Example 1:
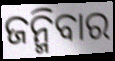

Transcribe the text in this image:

ଜନ୍ମିବାର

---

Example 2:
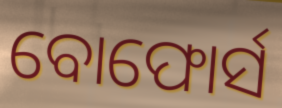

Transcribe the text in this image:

ବୋଫୋର୍ସ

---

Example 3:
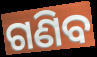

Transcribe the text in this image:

ଗଣିବ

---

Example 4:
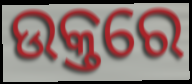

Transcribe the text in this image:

ଉକ୍ତରେ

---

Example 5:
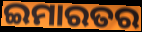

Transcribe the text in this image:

ଇମାରତର